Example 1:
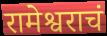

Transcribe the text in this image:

रामेश्वराचं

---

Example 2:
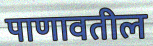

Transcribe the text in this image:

पाणावतील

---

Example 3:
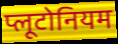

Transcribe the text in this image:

प्लूटोनियम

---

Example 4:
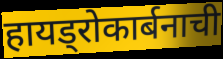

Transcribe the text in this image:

हायड्रोकार्बनाची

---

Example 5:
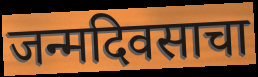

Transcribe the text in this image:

जन्मदिवसाचा